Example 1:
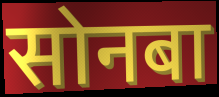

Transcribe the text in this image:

सोनबा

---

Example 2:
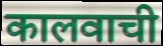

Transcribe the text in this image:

कालवाची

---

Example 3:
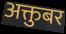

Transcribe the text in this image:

अक्तुबर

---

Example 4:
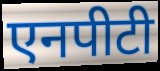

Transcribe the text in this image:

एनपीटी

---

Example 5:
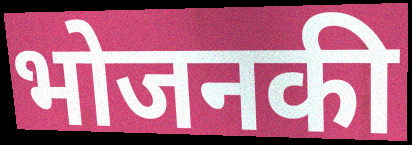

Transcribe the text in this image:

भोजनकी